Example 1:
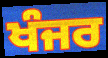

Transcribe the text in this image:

ਖੰਜਰ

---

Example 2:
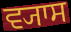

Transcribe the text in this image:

ਵ੍ਯਾਸ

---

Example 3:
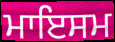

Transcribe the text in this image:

ਮਾਇਸਮ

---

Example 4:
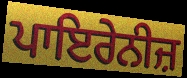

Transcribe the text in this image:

ਪਾਇਰੇਨੀਜ਼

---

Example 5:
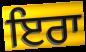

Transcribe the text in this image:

ਇਰਾ